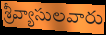
శ్రీవ్యాసులవారు